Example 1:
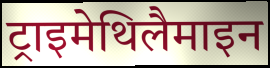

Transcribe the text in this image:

ट्राइमेथिलैमाइन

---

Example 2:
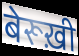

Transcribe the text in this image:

बेरूख़ी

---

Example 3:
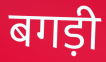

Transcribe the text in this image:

बगड़ी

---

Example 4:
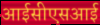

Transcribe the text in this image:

आईसीएसआई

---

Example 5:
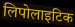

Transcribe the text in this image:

लिपोलाइटिक